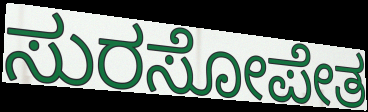
ಸುರಸೋಪೇತ